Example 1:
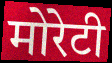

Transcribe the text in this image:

मोरेटी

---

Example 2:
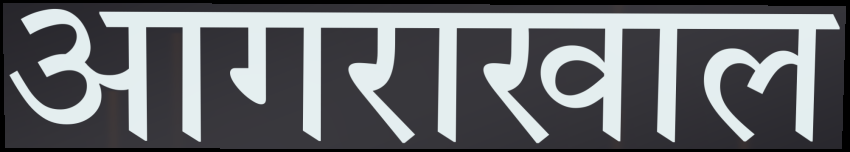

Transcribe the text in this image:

आगराखाल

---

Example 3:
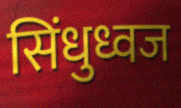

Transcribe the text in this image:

सिंधुध्वज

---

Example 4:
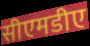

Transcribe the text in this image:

सीएमडीए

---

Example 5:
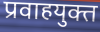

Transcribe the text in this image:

प्रवाहयुक्त